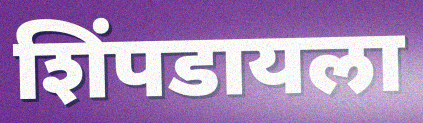
शिंपडायला